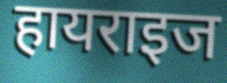
हायराइज